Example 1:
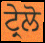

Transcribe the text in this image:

ਟ੍ਰੇਲੋ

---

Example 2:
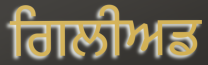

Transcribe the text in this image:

ਗਿਲੀਅਡ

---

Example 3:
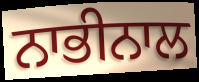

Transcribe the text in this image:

ਨਾਭੀਨਾਲ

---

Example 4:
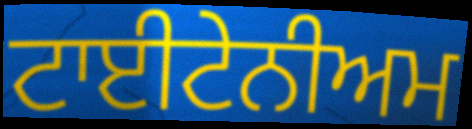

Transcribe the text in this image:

ਟਾਈਟੇਨੀਅਮ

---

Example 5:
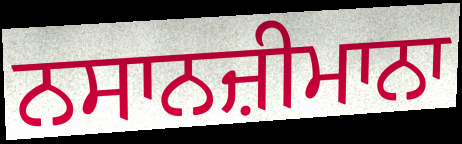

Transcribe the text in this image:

ਨਸਾਨਜ਼ੀਮਾਨਾ